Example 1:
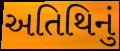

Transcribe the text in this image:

અતિથિનું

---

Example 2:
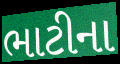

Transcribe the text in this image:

ભાટીના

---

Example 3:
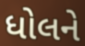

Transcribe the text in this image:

ધોલને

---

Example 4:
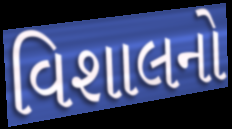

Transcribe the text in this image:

વિશાલનો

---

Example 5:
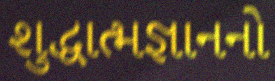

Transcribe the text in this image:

શુદ્ધાત્મજ્ઞાનનો